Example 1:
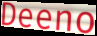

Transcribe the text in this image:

Deeno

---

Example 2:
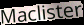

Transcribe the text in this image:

Maclister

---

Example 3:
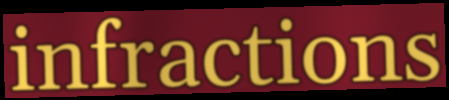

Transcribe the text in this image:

infractions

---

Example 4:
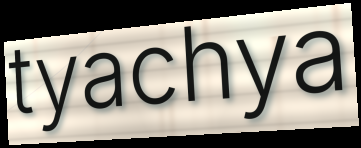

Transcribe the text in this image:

tyachya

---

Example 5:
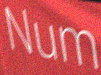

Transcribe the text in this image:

Num